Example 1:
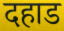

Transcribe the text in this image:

दहाड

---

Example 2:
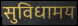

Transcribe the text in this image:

सुविधामय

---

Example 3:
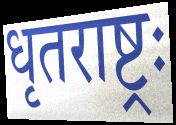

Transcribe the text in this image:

धृतराष्ट्रः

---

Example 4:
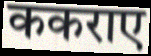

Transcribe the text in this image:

ककराए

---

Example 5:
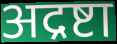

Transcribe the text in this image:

अद्रष्टा